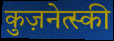
कुज़नेत्स्की